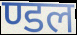
ण्डल